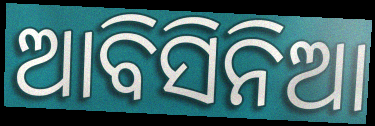
ଆବିସିନିଆ